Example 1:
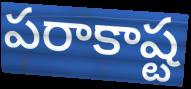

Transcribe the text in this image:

పరాకాష్ట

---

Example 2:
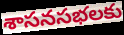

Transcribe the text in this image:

శాసనసభలకు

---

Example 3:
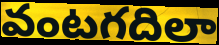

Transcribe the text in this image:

వంటగదిలా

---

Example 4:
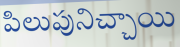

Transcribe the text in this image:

పిలుపునిచ్చాయి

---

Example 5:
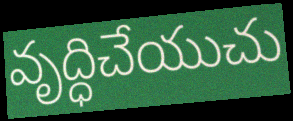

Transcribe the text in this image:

వృద్ధిచేయుచు